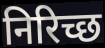
निरिच्छ